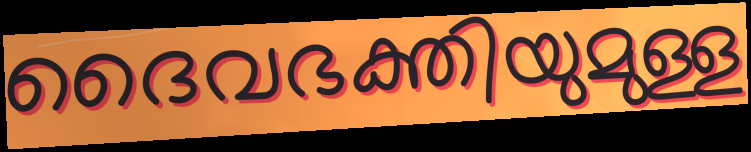
ദൈവഭക്തിയുമുള്ള